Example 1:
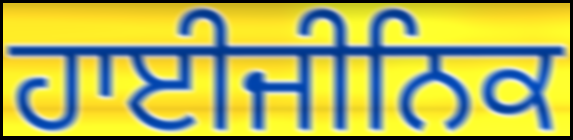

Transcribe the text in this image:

ਹਾਈਜੀਨਿਕ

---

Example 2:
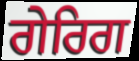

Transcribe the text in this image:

ਗੇਰਿਗ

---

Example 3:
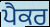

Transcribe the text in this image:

ਪੈਕਰ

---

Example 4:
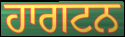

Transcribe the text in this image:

ਹਾਗਟਨ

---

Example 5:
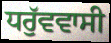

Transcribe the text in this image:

ਧਰੁੱਵਵਾਸੀ